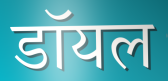
डॉयल